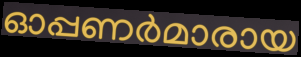
ഓപ്പണർമാരായ